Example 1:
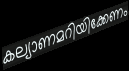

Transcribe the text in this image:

കല്യാണമറിയിക്കേണം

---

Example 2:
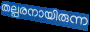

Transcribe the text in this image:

തല്പരനായിരുന്ന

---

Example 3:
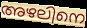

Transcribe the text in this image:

അഴലിനെ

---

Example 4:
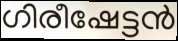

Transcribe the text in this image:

ഗിരീഷേട്ടൻ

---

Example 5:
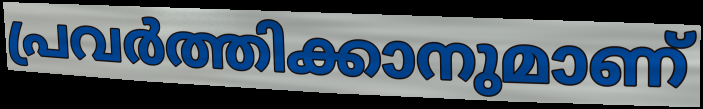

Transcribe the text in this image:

പ്രവർത്തിക്കാനുമാണ്